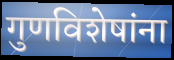
गुणविशेषांना